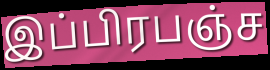
இப்பிரபஞ்ச